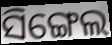
ସିଙ୍ଗେଲ